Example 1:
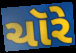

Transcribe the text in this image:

ચૉરે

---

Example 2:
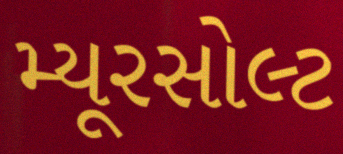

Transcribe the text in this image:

મ્યૂરસોલ્ટ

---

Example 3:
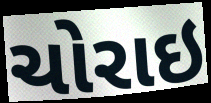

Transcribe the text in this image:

ચોરાઇ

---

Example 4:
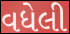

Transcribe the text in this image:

વધેલી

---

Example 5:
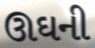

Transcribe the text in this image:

ઊઘની